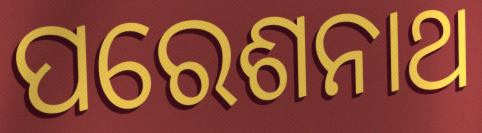
ପରେଶନାଥ